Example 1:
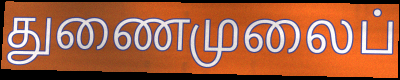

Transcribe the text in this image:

துணைமுலைப்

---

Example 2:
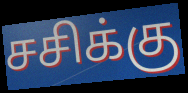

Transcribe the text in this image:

சசிக்கு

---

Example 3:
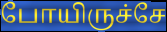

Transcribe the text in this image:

போயிருச்சே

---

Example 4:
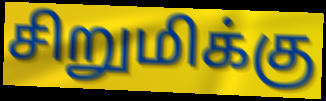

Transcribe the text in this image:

சிறுமிக்கு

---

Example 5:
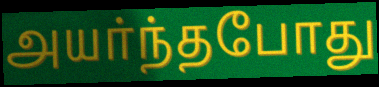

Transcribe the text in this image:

அயர்ந்தபோது